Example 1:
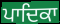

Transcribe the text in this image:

ਪਾਦਿਕਾ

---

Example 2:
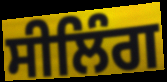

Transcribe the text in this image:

ਸੀਲਿੰਗ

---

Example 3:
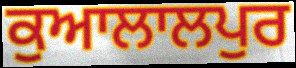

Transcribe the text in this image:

ਕੁਆਲਾਲਪੁਰ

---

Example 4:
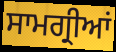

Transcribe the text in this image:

ਸਾਮਗ੍ਰੀਆਂ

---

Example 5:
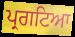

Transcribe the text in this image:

ਪ੍ਰਗਟਿਆ